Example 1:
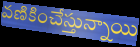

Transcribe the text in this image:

వణికించేస్తున్నాయి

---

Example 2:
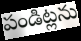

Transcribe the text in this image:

పండిట్లను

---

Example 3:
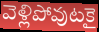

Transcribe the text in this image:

వెళ్లిపోవుటకై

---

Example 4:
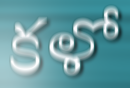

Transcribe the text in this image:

కళో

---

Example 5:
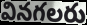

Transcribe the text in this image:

వినగలరు